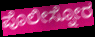
ಪೊಲೀಸ್ನೋರ